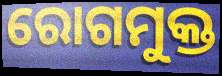
ରୋଗମୁକ୍ତ